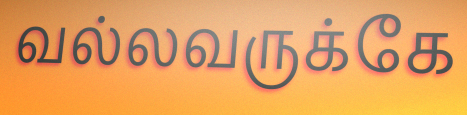
வல்லவருக்கே